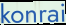
konrai